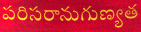
పరిసరానుగుణ్యత